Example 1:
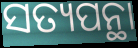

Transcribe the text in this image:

ସତ୍ୟପନ୍ଥା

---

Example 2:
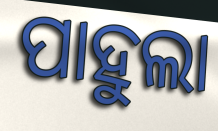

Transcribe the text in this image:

ପାହୁଲା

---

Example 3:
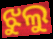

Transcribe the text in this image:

ଝୁଲୁ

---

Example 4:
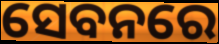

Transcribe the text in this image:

ସେବନରେ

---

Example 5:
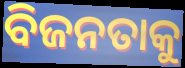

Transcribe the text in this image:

ବିଜନତାକୁ